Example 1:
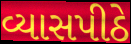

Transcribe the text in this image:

વ્યાસપીઠે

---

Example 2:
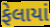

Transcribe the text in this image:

ફેલાયાં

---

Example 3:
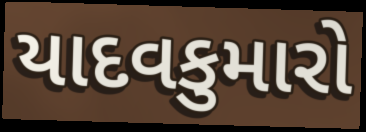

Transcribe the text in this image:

યાદવકુમારો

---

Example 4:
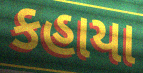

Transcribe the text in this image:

કહાયા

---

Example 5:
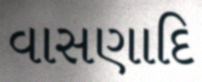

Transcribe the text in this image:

વાસણાદિ